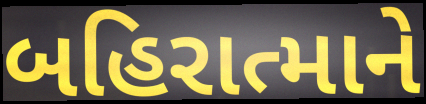
બહિરાત્માને